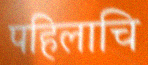
पहिलाचि